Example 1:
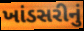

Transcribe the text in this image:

ખાંડસરીનું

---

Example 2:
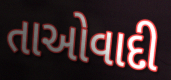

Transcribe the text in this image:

તાઓવાદી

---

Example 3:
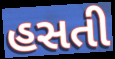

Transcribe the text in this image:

હસતી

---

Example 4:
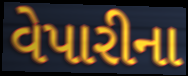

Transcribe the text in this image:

વેપારીના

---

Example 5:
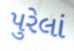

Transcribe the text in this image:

પુરેલાં